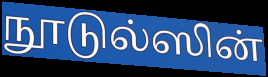
நூடுல்ஸின்